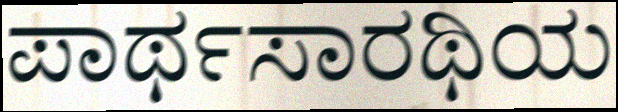
ಪಾರ್ಥಸಾರಥಿಯ